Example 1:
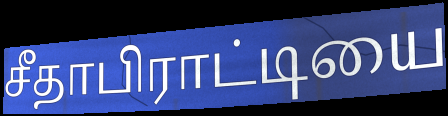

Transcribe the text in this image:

சீதாபிராட்டியை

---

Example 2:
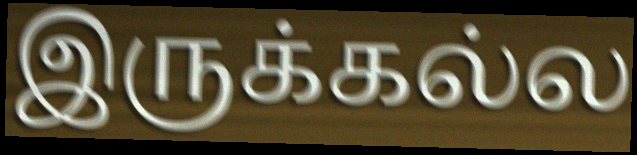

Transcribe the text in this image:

இருக்கல்ல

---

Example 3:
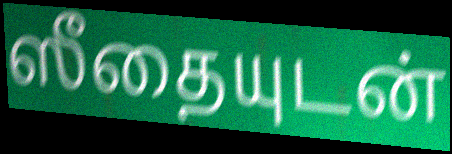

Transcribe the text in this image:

ஸீதையுடன்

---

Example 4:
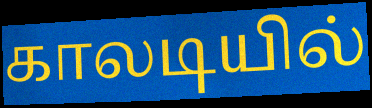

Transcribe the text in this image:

காலடியில்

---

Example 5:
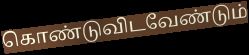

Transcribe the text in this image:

கொண்டுவிடவேண்டும்